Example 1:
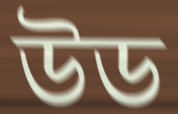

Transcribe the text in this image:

উড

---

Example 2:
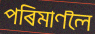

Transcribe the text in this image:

পৰিমাণলৈ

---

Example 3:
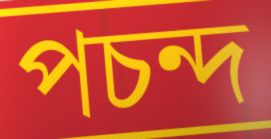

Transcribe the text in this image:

পচন্দ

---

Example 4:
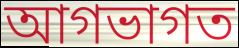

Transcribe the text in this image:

আগভাগত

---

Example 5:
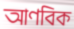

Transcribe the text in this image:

আণবিক